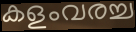
കളംവരച്ച